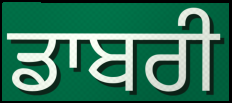
ਡਾਬਰੀ